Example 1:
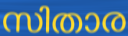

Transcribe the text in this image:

സിതാര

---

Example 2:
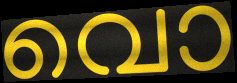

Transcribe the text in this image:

വൊ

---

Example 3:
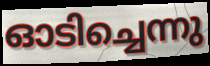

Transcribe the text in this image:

ഓടിച്ചെന്നു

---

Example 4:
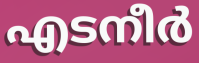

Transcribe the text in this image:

എടനീർ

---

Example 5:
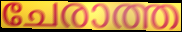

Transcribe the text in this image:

ചേരാത്ത